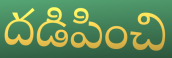
దడిపించి